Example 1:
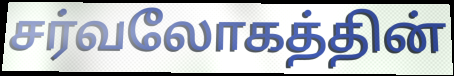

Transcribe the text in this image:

சர்வலோகத்தின்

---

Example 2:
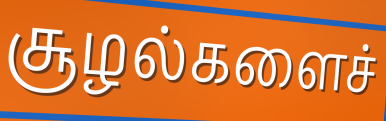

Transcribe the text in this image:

சூழல்களைச்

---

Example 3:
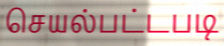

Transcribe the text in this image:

செயல்பட்டபடி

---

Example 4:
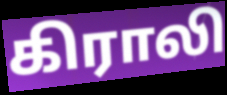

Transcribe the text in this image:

கிராலி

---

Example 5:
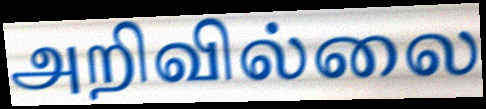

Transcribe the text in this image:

அறிவில்லை